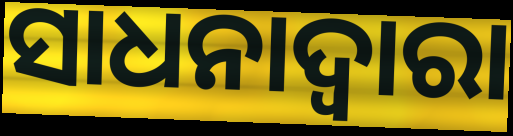
ସାଧନାଦ୍ଵାରା